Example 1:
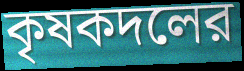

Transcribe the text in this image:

কৃষকদলের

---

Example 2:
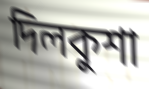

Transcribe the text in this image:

দিলকুশা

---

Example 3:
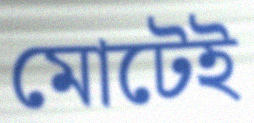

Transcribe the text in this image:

মোটেই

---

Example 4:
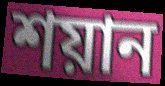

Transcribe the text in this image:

শয়ান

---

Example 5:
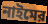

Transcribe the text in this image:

নাইমের